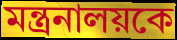
মন্ত্রনালয়কে